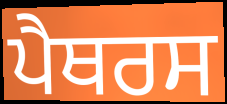
ਪੈਥਰਸ